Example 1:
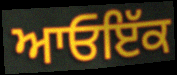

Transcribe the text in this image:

ਆਓਇੱਕ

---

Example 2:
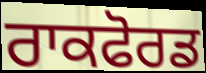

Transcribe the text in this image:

ਰਾਕਫੋਰਡ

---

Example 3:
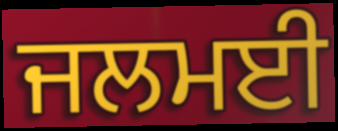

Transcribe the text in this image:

ਜਲਮਈ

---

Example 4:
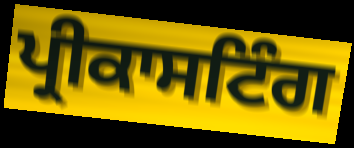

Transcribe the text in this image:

ਪ੍ਰੀਕਾਸਟਿੰਗ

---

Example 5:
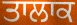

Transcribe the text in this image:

ਤਾਲਾਕ